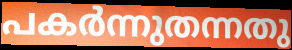
പകർന്നുതന്നതു